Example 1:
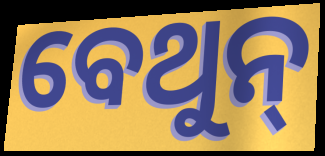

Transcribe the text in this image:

ବେଥୁନ୍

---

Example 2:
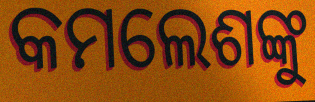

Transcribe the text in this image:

କମଲେଶଙ୍କୁ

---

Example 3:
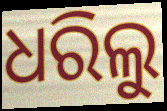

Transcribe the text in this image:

ଧରିଲୁ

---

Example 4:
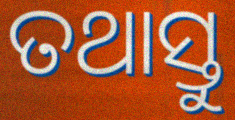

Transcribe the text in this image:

ତଥାସ୍ତୁ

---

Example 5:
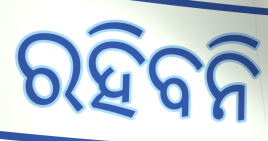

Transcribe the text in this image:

ରହିବନି